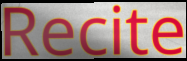
Recite